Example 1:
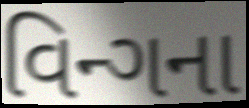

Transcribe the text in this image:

વિન્ગના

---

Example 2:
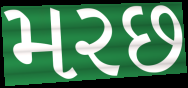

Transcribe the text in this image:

મરછ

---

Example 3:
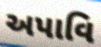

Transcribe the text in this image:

અપાવિ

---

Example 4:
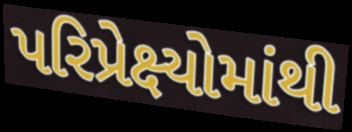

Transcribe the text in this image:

પરિપ્રેક્ષ્યોમાંથી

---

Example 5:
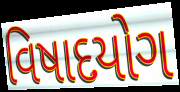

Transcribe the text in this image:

વિષાદયોગ